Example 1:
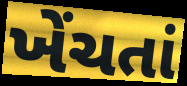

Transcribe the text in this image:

ખેંચતાં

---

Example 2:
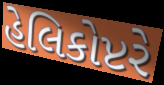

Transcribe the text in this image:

હેલિકોપ્ટરે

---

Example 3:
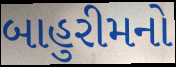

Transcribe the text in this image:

બાહુરીમનો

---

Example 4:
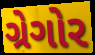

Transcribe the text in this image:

ગ્રેગોર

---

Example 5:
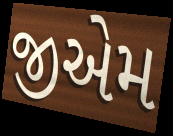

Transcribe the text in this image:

જીએમ